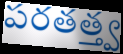
పరతత్త్వ